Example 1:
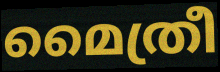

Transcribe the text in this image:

മൈത്രീ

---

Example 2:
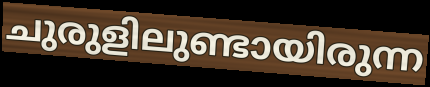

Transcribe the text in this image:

ചുരുളിലുണ്ടായിരുന്ന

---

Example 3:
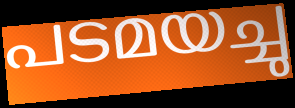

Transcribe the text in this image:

പടമയച്ചു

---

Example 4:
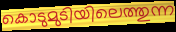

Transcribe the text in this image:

കൊടുമുടിയിലെത്തുന്ന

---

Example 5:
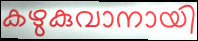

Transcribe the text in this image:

കഴുകുവാനായി